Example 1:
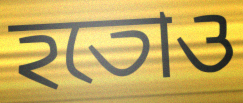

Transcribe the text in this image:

হতোও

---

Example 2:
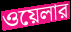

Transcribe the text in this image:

ওয়েলার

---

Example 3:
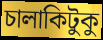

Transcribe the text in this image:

চালাকিটুকু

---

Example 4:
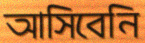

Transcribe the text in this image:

আসিবেনি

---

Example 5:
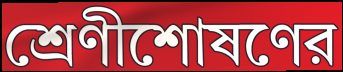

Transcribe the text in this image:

শ্রেণীশোষণের